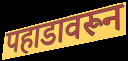
पहाडावरून